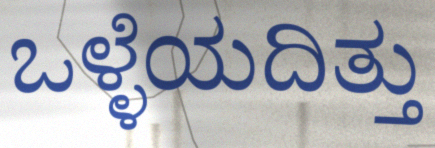
ಒಳ್ಳೆಯದಿತ್ತು